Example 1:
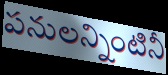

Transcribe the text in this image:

పనులన్నింటినీ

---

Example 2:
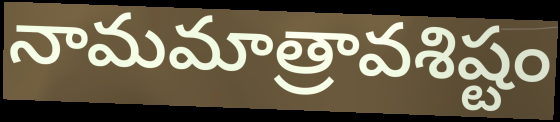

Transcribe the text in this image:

నామమాత్రావశిష్టం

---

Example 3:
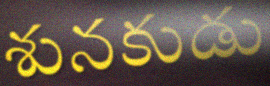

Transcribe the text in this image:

శునకుడు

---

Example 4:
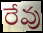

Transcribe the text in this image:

రేవు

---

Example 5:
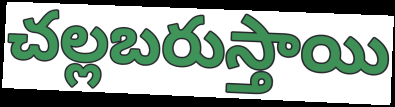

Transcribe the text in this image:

చల్లబరుస్తాయి